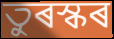
তুৰস্কৰ